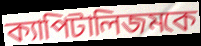
ক্যাপিটালিজমকে